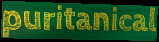
puritanical